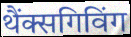
थैंक्सगिविंग